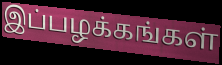
இப்பழக்கங்கள்